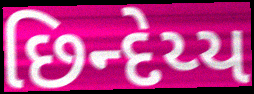
છિન્દેય્ય